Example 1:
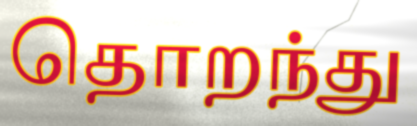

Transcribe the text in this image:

தொறந்து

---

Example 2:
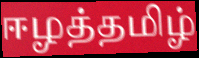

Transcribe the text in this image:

ஈழத்தமிழ்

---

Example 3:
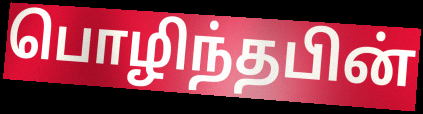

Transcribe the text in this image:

பொழிந்தபின்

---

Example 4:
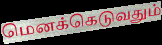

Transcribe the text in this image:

மெனக்கெடுவதும்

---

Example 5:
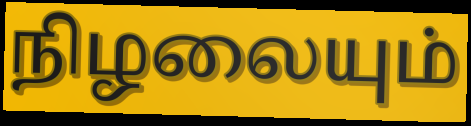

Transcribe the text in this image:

நிழலையும்